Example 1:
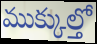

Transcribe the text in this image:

ముక్కుల్తో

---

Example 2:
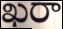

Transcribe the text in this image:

ఖరా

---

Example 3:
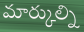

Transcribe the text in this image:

మార్కుల్ని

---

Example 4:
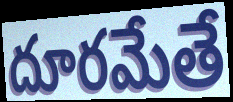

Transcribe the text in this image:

దూరమేతే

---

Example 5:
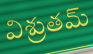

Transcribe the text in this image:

విశ్రుతమ్